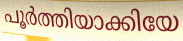
പൂർത്തിയാക്കിയേ